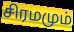
சிரமமும்